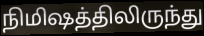
நிமிஷத்திலிருந்து